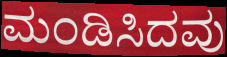
ಮಂಡಿಸಿದವು